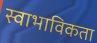
स्वाभाविकता